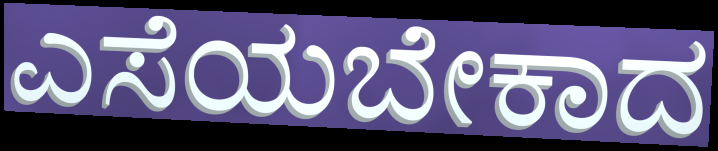
ಎಸೆಯಬೇಕಾದ